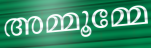
അമ്മൂമ്മേ